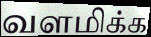
வளமிக்க